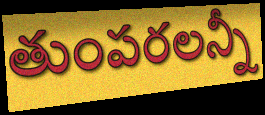
తుంపరలన్నీ